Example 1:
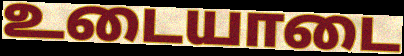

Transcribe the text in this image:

உடையாடை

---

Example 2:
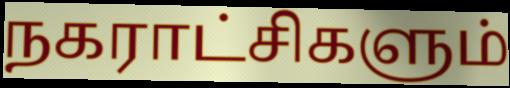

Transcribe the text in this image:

நகராட்சிகளும்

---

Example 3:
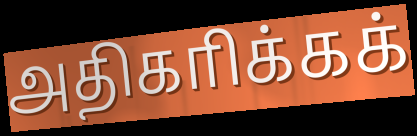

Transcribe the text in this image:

அதிகரிக்கக்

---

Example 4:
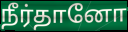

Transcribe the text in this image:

நீர்தானோ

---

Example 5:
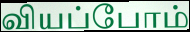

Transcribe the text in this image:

வியப்போம்